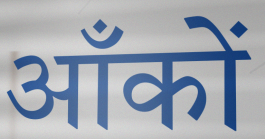
आँकों